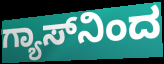
ಗ್ಯಾಸ್‌ನಿಂದ